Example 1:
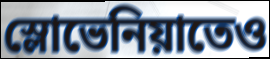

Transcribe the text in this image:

স্লোভেনিয়াতেও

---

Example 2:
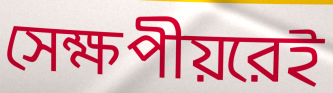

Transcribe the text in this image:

সেক্ষপীয়রেই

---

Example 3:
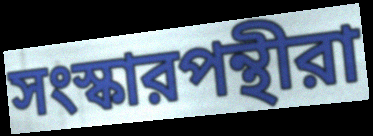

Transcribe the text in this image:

সংস্কারপন্থীরা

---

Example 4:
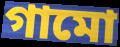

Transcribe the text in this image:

গামো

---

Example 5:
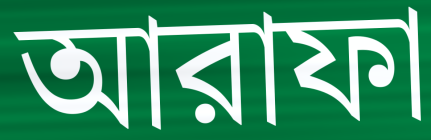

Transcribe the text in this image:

আরাফা